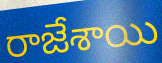
రాజేశాయి